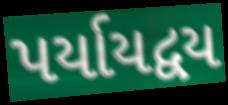
પર્યાયદ્વય